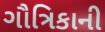
ગૌત્રિકાની